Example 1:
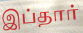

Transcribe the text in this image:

இப்தார்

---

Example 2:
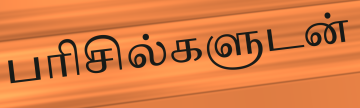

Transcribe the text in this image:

பரிசில்களுடன்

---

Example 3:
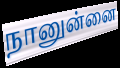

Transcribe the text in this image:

நானுன்னை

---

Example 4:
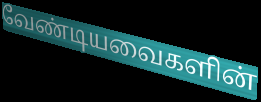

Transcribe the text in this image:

வேண்டியவைகளின்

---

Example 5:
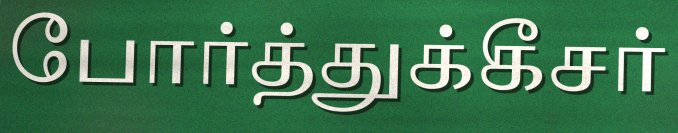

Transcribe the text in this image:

போர்த்துக்கீசர்